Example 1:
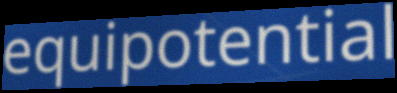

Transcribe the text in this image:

equipotential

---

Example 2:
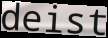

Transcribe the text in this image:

deist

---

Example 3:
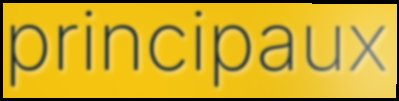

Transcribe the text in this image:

principaux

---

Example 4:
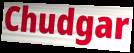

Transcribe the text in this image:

Chudgar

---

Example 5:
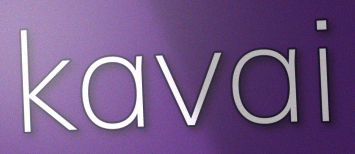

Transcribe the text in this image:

kavai